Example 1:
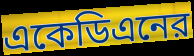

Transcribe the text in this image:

একেডিএনের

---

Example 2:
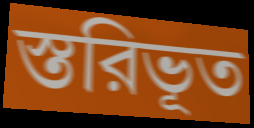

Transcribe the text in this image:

স্তরিভূত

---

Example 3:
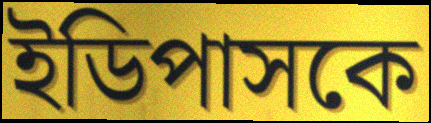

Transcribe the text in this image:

ইডিপাসকে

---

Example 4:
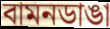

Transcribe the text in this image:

বামনডাঙা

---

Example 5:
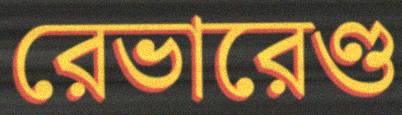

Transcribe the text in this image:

রেভারেণ্ড